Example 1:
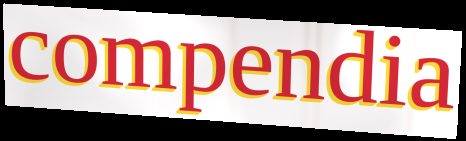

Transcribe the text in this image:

compendia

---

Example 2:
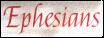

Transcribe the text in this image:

Ephesians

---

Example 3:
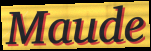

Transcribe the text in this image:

Maude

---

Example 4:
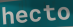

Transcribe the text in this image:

hecto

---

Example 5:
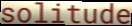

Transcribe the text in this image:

solitude